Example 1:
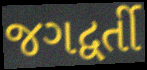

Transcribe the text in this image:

જગદ્વર્તી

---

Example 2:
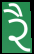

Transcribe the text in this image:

રૈ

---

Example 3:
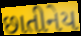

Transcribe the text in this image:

છાતીનેય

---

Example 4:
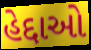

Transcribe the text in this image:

હેદ્દાઓ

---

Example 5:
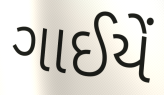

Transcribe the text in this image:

ગાઈયેં